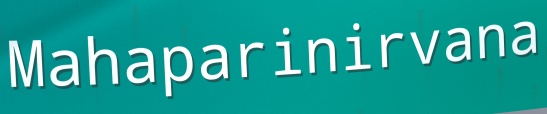
Mahaparinirvana